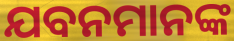
ଯବନମାନଙ୍କ